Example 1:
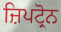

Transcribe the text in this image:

ਜ਼ਿਪਟ੍ਰੋਨ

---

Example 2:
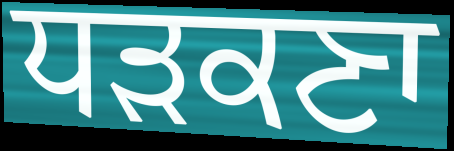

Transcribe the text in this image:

ਧੜਕਣਾ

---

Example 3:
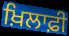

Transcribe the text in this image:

ਖ਼ਿਲਾਫ਼ੀ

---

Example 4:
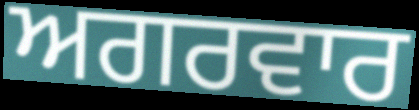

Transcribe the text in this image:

ਅਗਰਵਾਰ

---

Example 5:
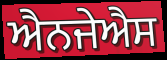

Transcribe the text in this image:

ਐਨਜੇਐਸ